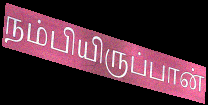
நம்பியிருப்பான்